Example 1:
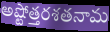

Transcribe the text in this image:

అష్టోత్తరశతనామ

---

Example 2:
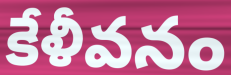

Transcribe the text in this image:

కేళీవనం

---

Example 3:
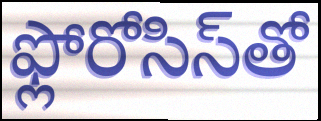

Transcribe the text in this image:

ఫ్లోరోసిస్‌తో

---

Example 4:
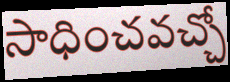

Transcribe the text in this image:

సాధించవచ్చో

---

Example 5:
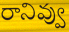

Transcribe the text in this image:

రానివ్వు